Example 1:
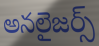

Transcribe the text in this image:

అనలైజర్స్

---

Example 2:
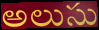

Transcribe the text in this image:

అలుసు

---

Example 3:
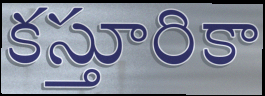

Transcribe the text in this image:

కస్తూరికా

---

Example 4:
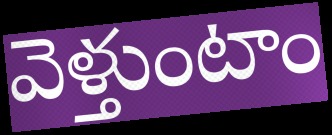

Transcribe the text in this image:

వెళ్తుంటాం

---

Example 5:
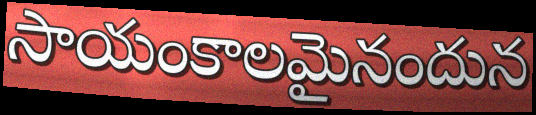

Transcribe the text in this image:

సాయంకాలమైనందున